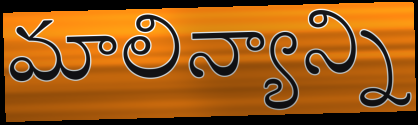
మాలిన్యాన్ని